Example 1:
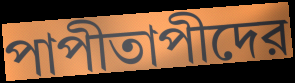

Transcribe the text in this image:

পাপীতাপীদের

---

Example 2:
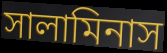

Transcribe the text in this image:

সালামিনাস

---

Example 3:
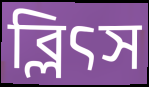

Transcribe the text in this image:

ব্লিৎস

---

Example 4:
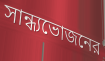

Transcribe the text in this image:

সান্ধ্যভোজনের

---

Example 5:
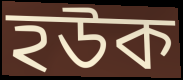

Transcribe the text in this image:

হউক